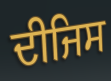
ਦੀਜਿਸ